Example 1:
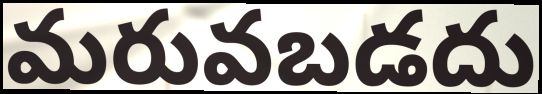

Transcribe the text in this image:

మరువబడదు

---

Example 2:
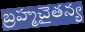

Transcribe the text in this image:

బ్రహ్మచైతన్య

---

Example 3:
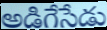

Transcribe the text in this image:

అడిగేసేడు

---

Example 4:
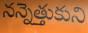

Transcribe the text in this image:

నన్నెత్తుకుని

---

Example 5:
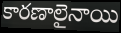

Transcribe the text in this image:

కారణాలైనాయి